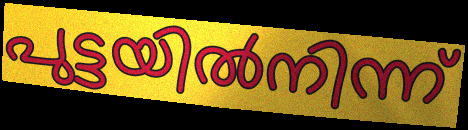
പുട്ടയിൽനിന്ന്